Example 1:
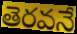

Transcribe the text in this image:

తెరవనే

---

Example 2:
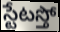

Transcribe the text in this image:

స్టేటస్తో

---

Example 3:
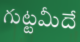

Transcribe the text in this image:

గుట్టమీదే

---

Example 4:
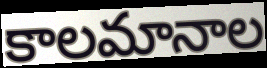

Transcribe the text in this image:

కాలమానాల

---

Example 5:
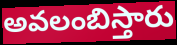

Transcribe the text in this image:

అవలంబిస్తారు